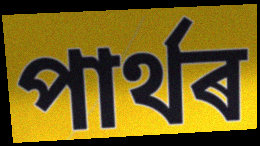
পাৰ্থৰ